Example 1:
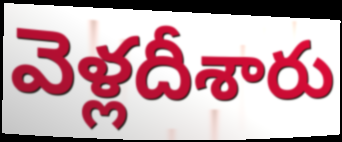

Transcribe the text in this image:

వెళ్లదీశారు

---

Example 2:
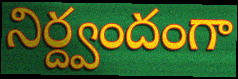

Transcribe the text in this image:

నిర్ద్వందంగా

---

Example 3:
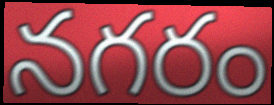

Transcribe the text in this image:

నగరం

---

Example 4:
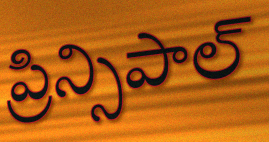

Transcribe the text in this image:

ప్రిన్సిపాల్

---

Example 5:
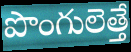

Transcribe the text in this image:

పొంగులెత్తే